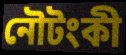
নৌটংকী